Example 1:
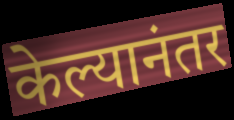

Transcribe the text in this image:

केल्यानंतर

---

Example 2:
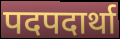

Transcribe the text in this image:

पदपदार्था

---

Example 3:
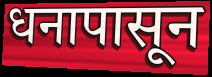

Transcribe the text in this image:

धनापासून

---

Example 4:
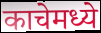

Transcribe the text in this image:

काचेमध्ये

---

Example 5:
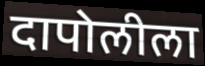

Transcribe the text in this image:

दापोलीला